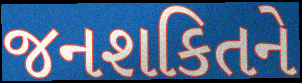
જનશકિતને